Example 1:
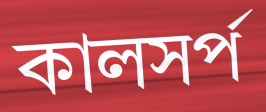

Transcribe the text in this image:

কালসর্প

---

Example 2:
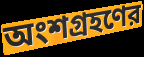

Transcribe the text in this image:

অংশগ্রহণের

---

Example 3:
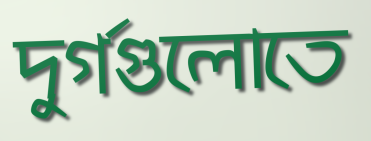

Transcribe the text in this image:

দুর্গগুলোতে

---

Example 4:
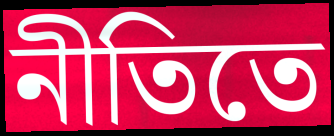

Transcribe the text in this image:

নীতিতে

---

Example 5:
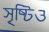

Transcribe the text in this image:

সৃষ্টিও